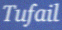
Tufail